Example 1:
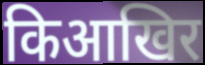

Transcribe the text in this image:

किआखिर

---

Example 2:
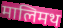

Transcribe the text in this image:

मालिमथ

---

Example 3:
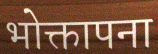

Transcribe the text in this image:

भोक्तापना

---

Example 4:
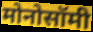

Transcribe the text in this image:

मोनोसॉमी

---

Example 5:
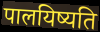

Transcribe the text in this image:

पालयिष्यति